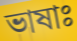
ভাষাঃ